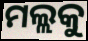
ମଲ୍ଲକୁ